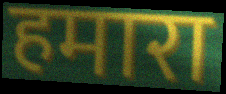
हमारा